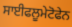
ਸਾਈਫਲੂਮੇਟੋਫੇਨ